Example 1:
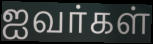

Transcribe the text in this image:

ஐவர்கள்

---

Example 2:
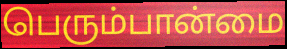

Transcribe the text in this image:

பெரும்பான்மை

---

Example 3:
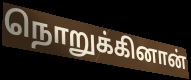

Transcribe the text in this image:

நொறுக்கினான்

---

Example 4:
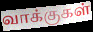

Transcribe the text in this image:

வாக்குகள்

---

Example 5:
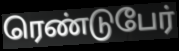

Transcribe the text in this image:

ரெண்டுபேர்